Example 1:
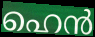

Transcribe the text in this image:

ഹെൻ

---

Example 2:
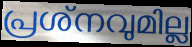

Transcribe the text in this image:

പ്രശ്‌നവുമില്ല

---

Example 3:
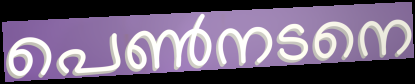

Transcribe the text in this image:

പെൺനടനെ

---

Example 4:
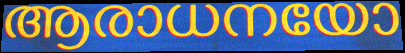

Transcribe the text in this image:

ആരാധനയോ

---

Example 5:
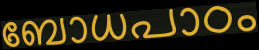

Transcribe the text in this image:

ബോധപാഠം